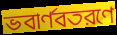
ভবার্ণবতরণে